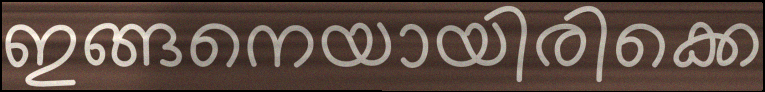
ഇങ്ങനെയായിരിക്കെ